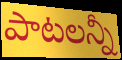
పాటలన్నీ